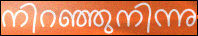
നിറഞ്ഞുനിന്നു